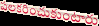
పలకరించుకుంటారు